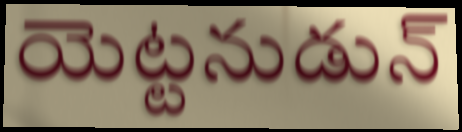
యెట్టనుడున్